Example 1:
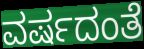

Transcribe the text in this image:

ವರ್ಷದಂತೆ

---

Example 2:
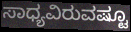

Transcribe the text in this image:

ಸಾಧ್ಯವಿರುವಷ್ಟೂ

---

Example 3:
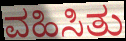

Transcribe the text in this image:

ವಹಿಸಿತು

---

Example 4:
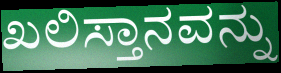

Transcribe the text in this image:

ಖಲಿಸ್ತಾನವನ್ನು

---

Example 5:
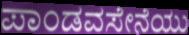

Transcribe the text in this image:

ಪಾಂಡವಸೇನೆಯು